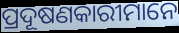
ପ୍ରଦୂଷଣକାରୀମାନେ